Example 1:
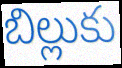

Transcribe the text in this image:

బిల్లుకు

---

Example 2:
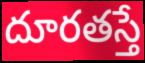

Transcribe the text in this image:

దూరతస్తే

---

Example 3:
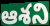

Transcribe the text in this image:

ఆశని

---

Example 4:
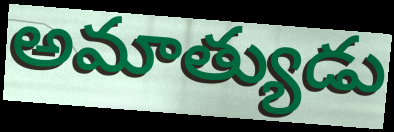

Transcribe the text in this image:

అమాత్యుడు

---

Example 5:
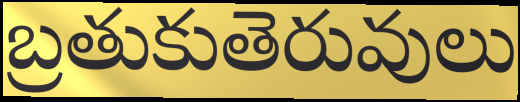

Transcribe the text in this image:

బ్రతుకుతెరువులు